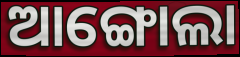
ଆଙ୍ଗୋଲା